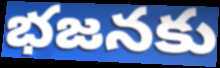
భజనకు